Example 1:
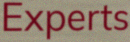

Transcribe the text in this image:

Experts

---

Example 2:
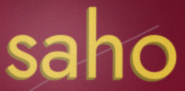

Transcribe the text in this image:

saho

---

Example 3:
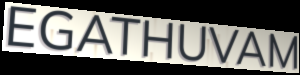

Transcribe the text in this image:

EGATHUVAM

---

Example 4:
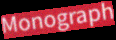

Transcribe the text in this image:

Monograph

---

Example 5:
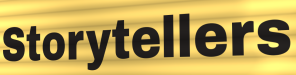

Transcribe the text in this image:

Storytellers